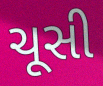
ચૂસી